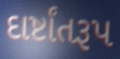
દાર્ષ્ટાંતરૂપ